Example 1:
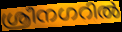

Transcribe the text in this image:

ശ്രീനഗറിൽ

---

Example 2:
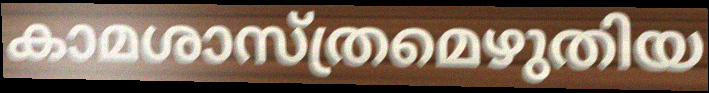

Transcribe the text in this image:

കാമശാസ്ത്രമെഴുതിയ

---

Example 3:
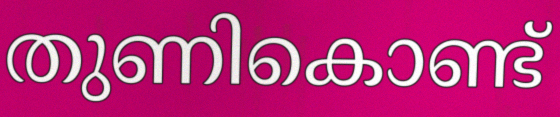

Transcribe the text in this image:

തുണികൊണ്ട്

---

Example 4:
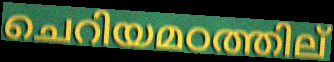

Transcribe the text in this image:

ചെറിയമഠത്തില്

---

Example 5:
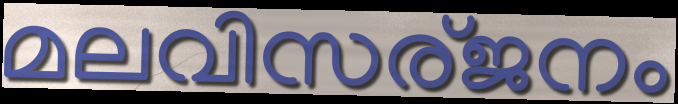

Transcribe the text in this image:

മലവിസര്ജനം